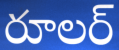
రూలర్